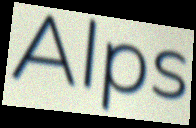
Alps